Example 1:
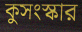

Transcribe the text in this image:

কুসংস্কার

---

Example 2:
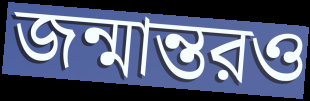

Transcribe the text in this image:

জন্মান্তরও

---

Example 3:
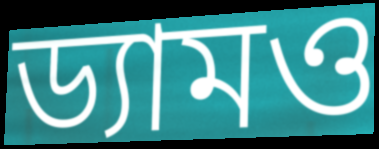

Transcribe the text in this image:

ড্যামও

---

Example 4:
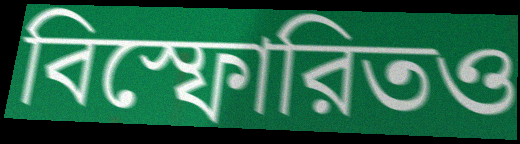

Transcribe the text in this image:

বিস্ফোরিতও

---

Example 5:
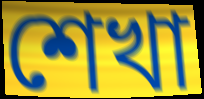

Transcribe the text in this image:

শেখা